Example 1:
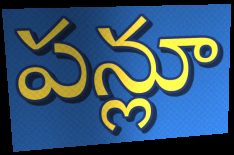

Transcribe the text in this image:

పన్లూ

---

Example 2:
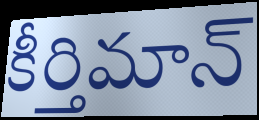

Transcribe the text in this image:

కీర్తిమాన్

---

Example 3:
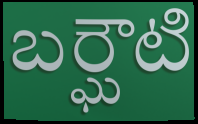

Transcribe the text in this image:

బర్ఘౌటి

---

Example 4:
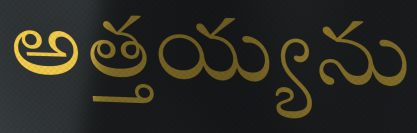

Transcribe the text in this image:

అత్తయ్యను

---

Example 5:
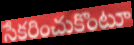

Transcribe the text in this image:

సేకరించుకొంటూ